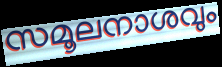
സമൂലനാശവും